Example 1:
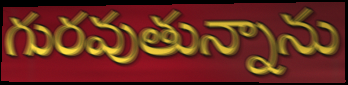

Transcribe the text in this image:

గురవుతున్నాను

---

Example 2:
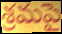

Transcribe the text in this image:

శ్రమపై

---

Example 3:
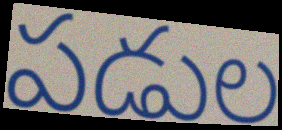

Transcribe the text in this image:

పడుల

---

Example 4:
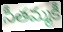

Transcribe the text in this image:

సీతమ్మకీ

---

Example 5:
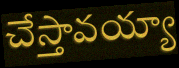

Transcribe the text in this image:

చేస్తావయ్యా